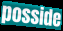
posside